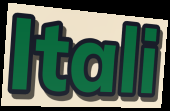
Itali